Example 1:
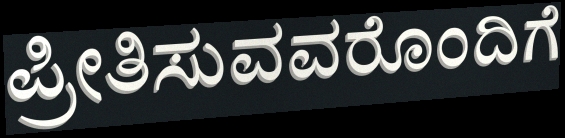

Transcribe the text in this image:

ಪ್ರೀತಿಸುವವರೊಂದಿಗೆ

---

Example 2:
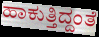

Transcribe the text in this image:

ಹಾಕುತ್ತಿದ್ದಂತೆ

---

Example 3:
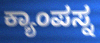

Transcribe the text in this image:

ಕ್ಯಾಂಪಸ್ನ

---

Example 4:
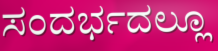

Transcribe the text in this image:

ಸಂದರ್ಭದಲ್ಲೂ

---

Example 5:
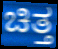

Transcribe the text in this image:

ಚಿತ್ತ